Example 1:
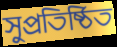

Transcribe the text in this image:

সুপ্ৰতিষ্ঠিত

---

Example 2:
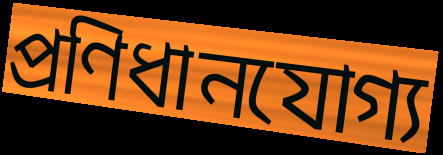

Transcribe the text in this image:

প্ৰণিধানযোগ্য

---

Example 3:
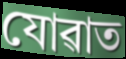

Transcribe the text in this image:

যোৱাত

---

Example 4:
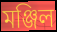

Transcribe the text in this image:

মঞ্জিল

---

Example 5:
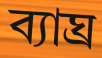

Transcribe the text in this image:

ব্যাঘ্ৰ